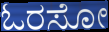
ಓರಸೋ